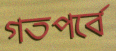
গতপর্বে